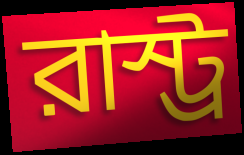
রাস্ট্র